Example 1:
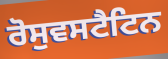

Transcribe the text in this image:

ਰੋਸੁਵਸਟੈਟਿਨ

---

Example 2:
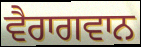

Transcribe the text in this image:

ਵੈਰਾਗਵਾਨ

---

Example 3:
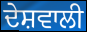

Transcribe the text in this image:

ਦੇਸ਼ਵਾਲੀ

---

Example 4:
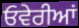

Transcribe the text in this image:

ਓਵੇਰੀਆਂ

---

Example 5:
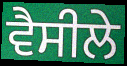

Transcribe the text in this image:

ਵੈਸੀਲੇ